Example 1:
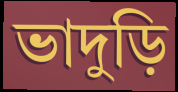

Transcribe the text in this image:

ভাদুড়ি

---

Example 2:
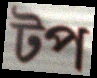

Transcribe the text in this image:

টপ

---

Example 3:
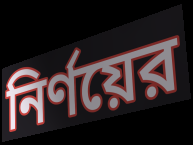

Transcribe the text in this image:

নির্ণয়ের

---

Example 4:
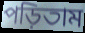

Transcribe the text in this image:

পড়িতাম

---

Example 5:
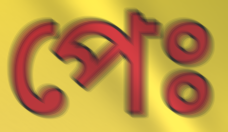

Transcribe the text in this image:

পেঃ